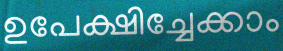
ഉപേക്ഷിച്ചേക്കാം